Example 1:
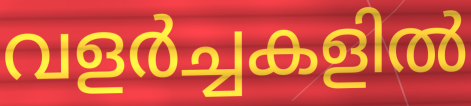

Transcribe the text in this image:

വളർച്ചകളിൽ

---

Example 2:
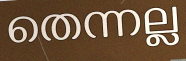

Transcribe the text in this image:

തെന്നല്ല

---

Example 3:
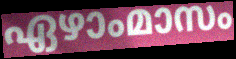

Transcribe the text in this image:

ഏഴാംമാസം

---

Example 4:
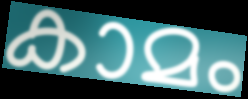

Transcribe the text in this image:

കാമം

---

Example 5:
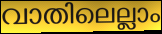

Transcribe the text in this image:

വാതിലെല്ലാം